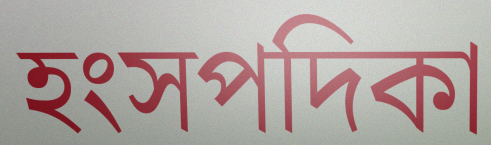
হংসপদিকা